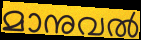
മാനുവൽ